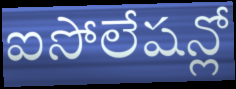
ఐసోలేషన్లో